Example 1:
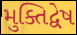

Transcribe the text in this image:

મુક્તિદ્વેષ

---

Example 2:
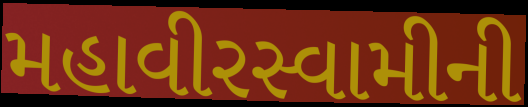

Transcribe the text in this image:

મહાવીરસ્વામીની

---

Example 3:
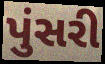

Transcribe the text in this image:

પુંસરી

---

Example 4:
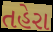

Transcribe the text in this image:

તહેરા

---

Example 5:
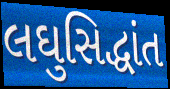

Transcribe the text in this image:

લઘુસિદ્ધાંત